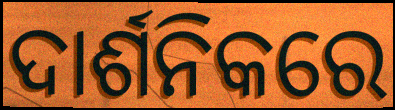
ଦାର୍ଶନିକରେ